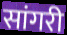
सांगरी